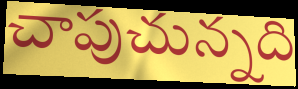
చాపుచున్నది